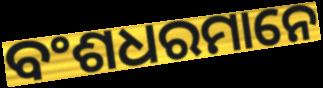
ବଂଶଧରମାନେ